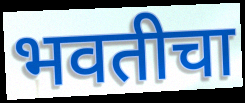
भवतीचा